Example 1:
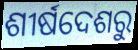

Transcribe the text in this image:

ଶୀର୍ଷଦେଶରୁ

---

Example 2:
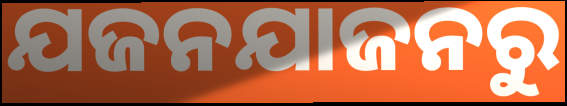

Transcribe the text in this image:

ଯଜନଯାଜନରୁ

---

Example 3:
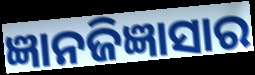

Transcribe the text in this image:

ଜ୍ଞାନଜିଜ୍ଞାସାର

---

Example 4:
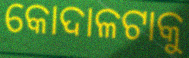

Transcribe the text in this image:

କୋଦାଳଟାକୁ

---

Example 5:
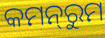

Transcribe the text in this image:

କମନ୍‌ରୁମ